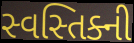
સ્વસ્તિક્ની